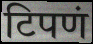
टिपणं